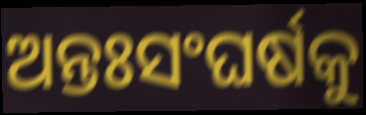
ଅନ୍ତଃସଂଘର୍ଷକୁ